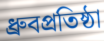
ধ্রুবপ্রতিষ্ঠা